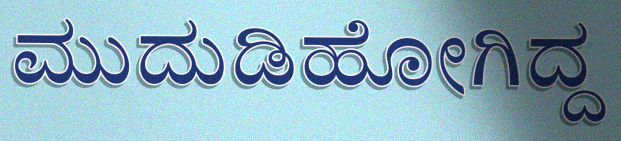
ಮುದುಡಿಹೋಗಿದ್ದ